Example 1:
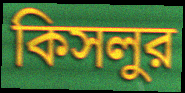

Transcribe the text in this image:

কিসলুর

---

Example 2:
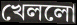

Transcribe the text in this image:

খেললো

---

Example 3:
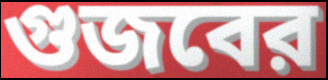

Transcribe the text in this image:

গুজবের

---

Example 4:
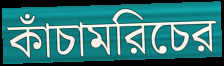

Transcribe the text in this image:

কাঁচামরিচের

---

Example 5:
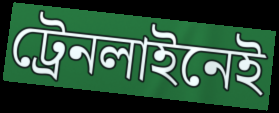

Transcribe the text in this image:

ট্রেনলাইনেই